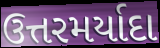
ઉત્તરમર્યાદા